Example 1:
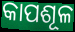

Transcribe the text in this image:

କାପଶୂଳ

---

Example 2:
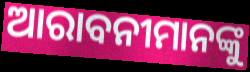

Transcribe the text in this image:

ଆରାବନୀମାନଙ୍କୁ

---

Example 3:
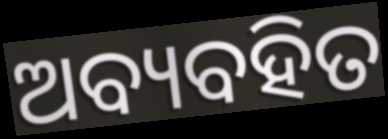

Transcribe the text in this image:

ଅବ୍ୟବହିତ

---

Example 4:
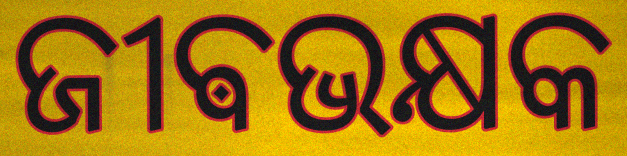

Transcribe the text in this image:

ଜୀଵଭକ୍ଷକ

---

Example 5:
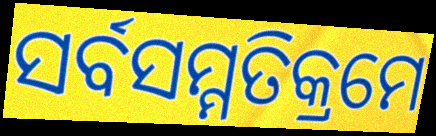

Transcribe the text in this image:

ସର୍ବସମ୍ମତିକ୍ରମେ